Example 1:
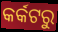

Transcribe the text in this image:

କର୍କଟରୁ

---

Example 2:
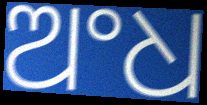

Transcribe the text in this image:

ଅଂଧ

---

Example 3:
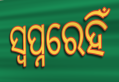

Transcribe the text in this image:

ସ୍ୱପ୍ନରେହିଁ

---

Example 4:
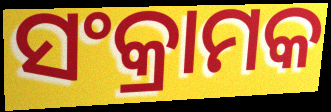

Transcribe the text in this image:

ସଂକ୍ରାମକ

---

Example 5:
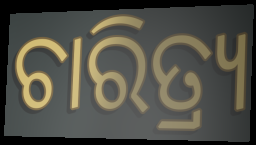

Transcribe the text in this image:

ଚାରିତ୍ର୍ୟ